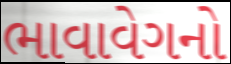
ભાવાવેગનો